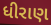
ધીરાણ